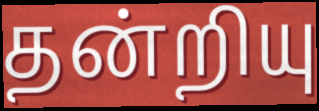
தன்றியு